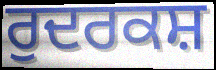
ਰੁਦਰਕਸ਼